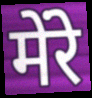
मेंरे